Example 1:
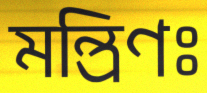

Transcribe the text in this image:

মন্ত্রিণঃ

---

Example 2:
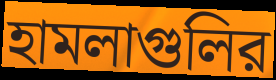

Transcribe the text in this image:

হামলাগুলির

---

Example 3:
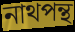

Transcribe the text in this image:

নাথপন্থ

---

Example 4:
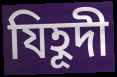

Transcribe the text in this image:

যিহূদী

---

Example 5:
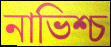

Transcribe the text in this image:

নাভিশ্চ